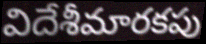
విదేశీమారకపు